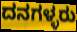
ದನಗಳ್ಳರು